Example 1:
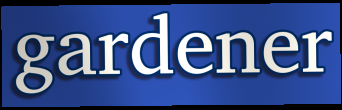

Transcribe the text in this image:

gardener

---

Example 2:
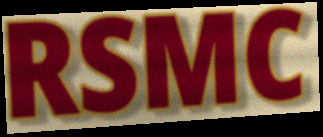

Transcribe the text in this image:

RSMC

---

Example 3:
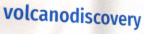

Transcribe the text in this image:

volcanodiscovery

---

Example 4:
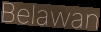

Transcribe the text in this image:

Belawan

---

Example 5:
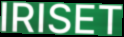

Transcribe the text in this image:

IRISET